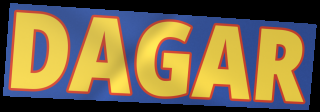
DAGAR